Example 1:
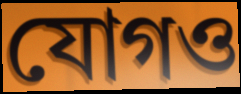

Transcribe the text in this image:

যোগও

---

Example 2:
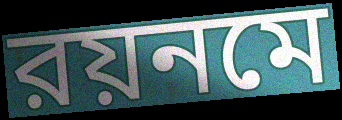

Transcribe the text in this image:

রয়নমে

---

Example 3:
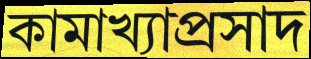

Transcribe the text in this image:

কামাখ্যাপ্রসাদ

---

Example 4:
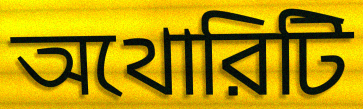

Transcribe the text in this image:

অথোরিটি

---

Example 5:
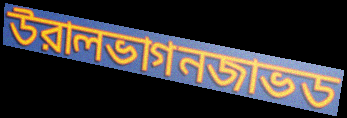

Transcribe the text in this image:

উরালভাগনজাভড